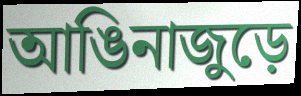
আঙিনাজুড়ে